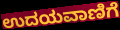
ಉದಯವಾಣಿಗೆ